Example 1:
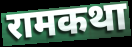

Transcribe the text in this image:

रामकथा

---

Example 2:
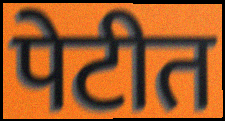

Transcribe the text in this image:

पेटीत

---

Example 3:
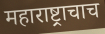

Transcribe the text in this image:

महाराष्ट्राचाच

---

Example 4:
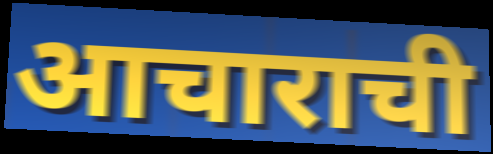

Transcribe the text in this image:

आचाराची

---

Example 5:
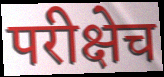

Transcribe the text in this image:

परीक्षेच